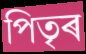
পিতৃৰ